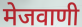
मेजवाणी